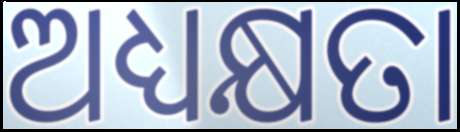
ଅଧ୍ୟକ୍ଷତା